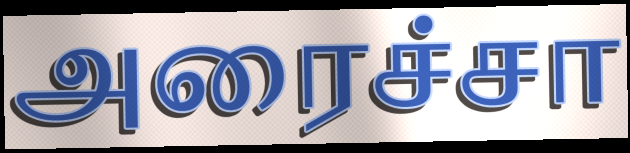
அரைச்சா